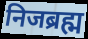
निजब्रह्म